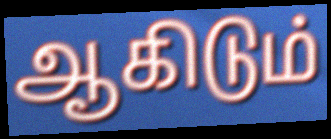
ஆகிடும்